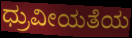
ಧ್ರುವೀಯತೆಯ